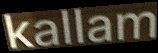
kallam